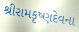
શ્રીરામકૃષ્ણદેવના